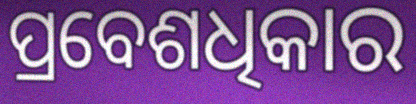
ପ୍ରବେଶଧିକାର